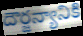
దౌర్జన్యానికి